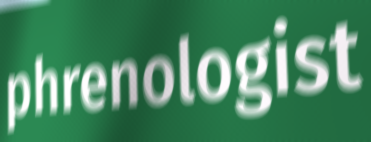
phrenologist